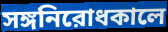
সঙ্গনিরোধকালে